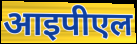
आइपीएल